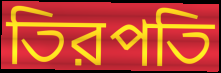
তিরপতি